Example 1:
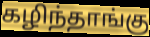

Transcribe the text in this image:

கழிந்தாங்கு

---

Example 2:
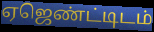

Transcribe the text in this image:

ஏஜெண்ட்டிடம்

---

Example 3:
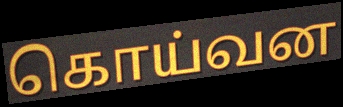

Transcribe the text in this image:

கொய்வன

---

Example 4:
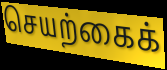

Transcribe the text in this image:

செயற்கைக்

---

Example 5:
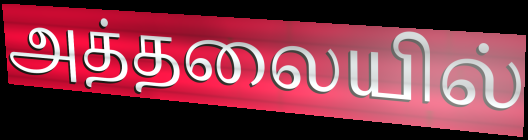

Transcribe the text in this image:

அத்தலையில்